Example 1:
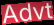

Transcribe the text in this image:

Advt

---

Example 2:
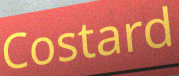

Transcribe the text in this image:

Costard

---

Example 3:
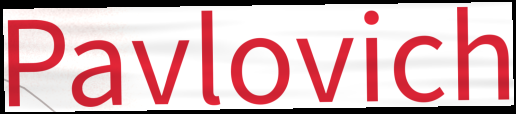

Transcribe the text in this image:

Pavlovich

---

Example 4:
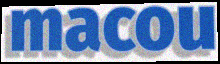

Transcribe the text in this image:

macou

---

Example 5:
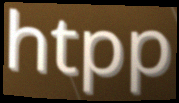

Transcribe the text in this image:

htpp